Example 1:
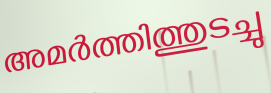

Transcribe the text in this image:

അമർത്തിത്തുടച്ചു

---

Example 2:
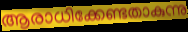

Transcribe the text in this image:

ആരാധിക്കേണ്ടതാകുന്നു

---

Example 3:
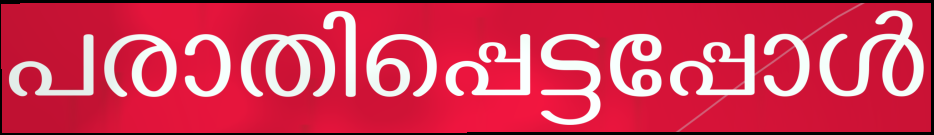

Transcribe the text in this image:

പരാതിപ്പെട്ടപ്പോൾ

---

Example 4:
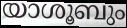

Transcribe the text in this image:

യാശൂബും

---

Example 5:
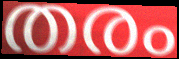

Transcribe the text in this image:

തരം